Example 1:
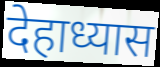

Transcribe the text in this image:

देहाध्यास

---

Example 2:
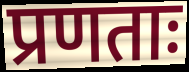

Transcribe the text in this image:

प्रणताः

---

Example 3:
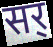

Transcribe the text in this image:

सर्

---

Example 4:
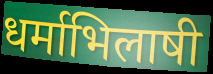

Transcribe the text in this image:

धर्माभिलाषी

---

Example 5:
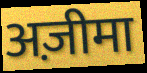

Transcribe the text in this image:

अज़ीमा